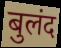
बुलंद